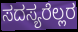
ಸದಸ್ಯರೆಲ್ಲರ